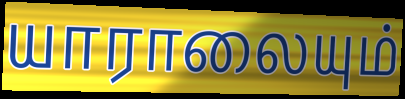
யாராலையும்